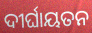
ଦୀର୍ଘାୟତନ